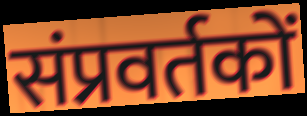
संप्रवर्तकों